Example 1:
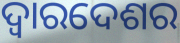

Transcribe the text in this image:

ଦ୍ୱାରଦେଶର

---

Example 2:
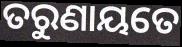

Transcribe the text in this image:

ତରୁଣାୟତେ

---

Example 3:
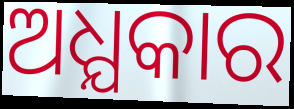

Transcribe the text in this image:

ଅଧ୍ଯକାର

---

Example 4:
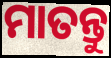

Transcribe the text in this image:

ମାତନ୍ତୁ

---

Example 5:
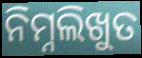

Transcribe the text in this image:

ନିମ୍ନଲିଖୁତ